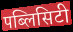
पब्लिसिटी